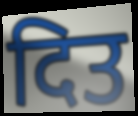
दिउ